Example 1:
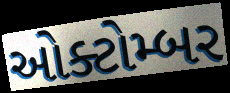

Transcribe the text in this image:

ઓક્ટોમ્બર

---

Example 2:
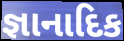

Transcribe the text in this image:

જ્ઞાનાદિક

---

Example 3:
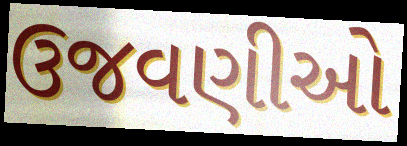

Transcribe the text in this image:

ઉજવણીઓ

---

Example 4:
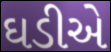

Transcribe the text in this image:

ઘડીએ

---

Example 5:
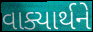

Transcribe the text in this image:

વાક્યાર્થને